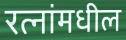
रत्नांमधील